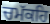
ਚਮੱਕਹਿ